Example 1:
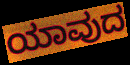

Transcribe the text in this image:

ಯಾವುದ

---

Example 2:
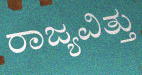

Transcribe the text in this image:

ರಾಜ್ಯವಿತ್ತು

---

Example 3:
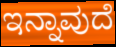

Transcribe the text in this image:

ಇನ್ನಾವುದೆ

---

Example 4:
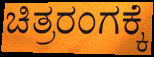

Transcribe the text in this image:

ಚಿತ್ರರಂಗಕ್ಕೆ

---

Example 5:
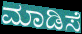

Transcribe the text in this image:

ಮಾಡಿಸೆ